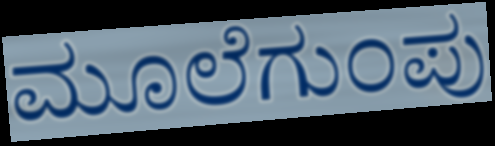
ಮೂಲೆಗುಂಪು